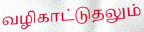
வழிகாட்டுதலும்